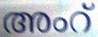
അംറ്